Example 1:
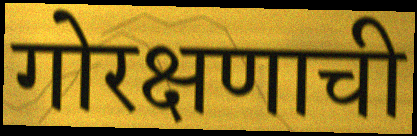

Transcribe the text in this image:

गोरक्षणाची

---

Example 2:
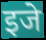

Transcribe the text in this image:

इजे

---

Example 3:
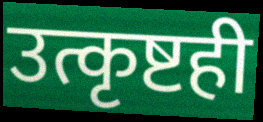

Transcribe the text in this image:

उत्कृष्टही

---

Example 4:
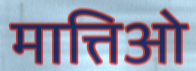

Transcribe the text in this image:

मात्तिओ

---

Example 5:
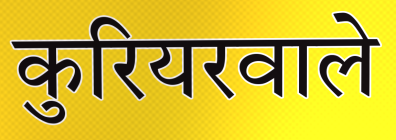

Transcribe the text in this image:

कुरियरवाले